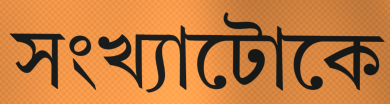
সংখ্যাটোকে